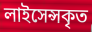
লাইসেন্সকৃত